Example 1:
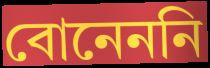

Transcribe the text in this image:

বোনেননি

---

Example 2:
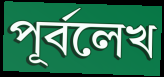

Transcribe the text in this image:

পূর্বলেখ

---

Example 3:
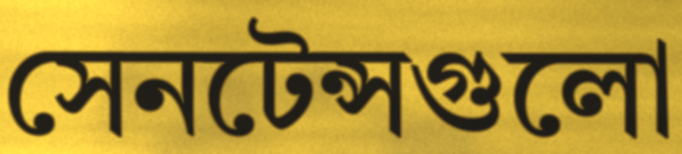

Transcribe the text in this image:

সেনটেন্সগুলো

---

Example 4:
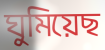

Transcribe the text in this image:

ঘুমিয়েছ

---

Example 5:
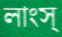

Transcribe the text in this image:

লাংস্